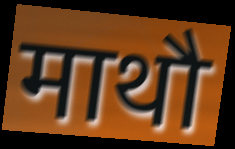
माथौ